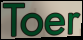
Toer